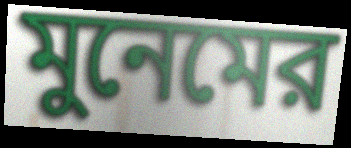
মুনেমের